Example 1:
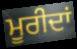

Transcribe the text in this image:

ਮੂਰੀਦਾਂ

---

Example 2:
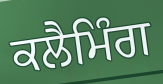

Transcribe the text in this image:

ਕਲੈਮਿੰਗ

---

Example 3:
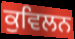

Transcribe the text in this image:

ਕੁਵਿਲਨ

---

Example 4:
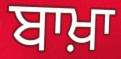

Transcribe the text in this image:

ਬਾਖ਼ਾ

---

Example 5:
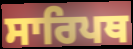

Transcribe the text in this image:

ਸਾਰਿਪਥ